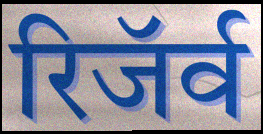
रिजॅर्व